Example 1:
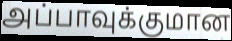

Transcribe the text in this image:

அப்பாவுக்குமான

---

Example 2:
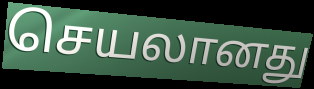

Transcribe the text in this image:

செயலானது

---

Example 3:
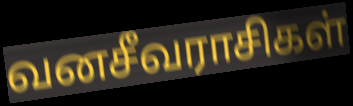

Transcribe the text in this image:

வனசீவராசிகள்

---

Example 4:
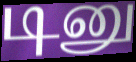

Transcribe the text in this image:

டினு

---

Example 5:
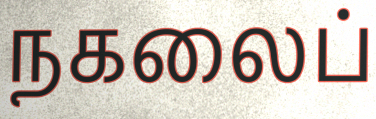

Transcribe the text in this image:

நகலைப்